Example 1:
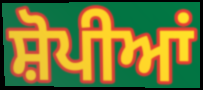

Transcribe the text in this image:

ਸ਼ੋਪੀਆਂ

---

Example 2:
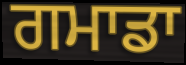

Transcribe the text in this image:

ਗਮਾਡਾ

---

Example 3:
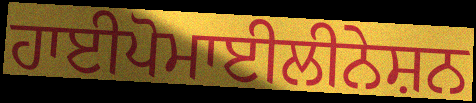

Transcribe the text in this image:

ਹਾਈਪੋਮਾਈਲੀਨੇਸ਼ਨ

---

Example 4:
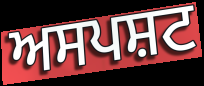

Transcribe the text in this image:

ਅਸਪਸ਼ਟ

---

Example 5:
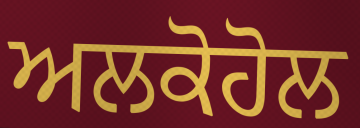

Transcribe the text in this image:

ਅਲਕੋਹੋਲ